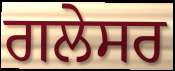
ਗਲੇਸਰ